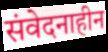
संवेदनाहीन